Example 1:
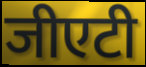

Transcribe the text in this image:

जीएटी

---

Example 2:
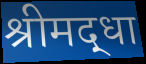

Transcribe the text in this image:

श्रीमद्धा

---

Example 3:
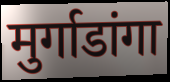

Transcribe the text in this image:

मुर्गाडांगा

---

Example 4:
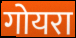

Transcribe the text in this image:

गोयरा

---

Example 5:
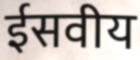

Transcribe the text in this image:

ईसवीय